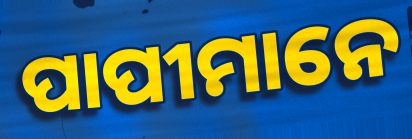
ପାପୀମାନେ